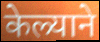
केल्याने